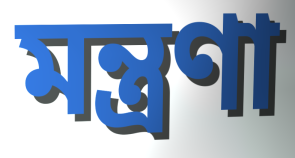
মন্ত্রণা